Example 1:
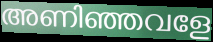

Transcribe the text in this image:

അണിഞ്ഞവളേ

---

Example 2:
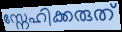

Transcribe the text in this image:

സ്നേഹിക്കരുത്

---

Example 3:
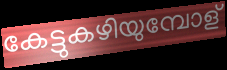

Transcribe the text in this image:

കേട്ടുകഴിയുമ്പോള്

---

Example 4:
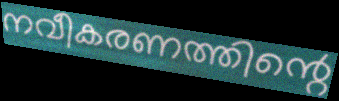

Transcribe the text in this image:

നവീകരണത്തിന്റെ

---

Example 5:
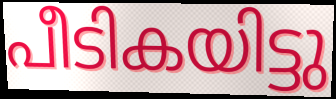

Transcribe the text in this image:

പീടികയിട്ടു